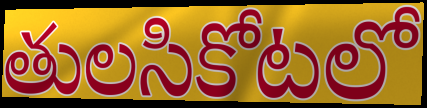
తులసికోటలో